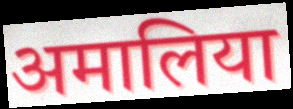
अमालिया